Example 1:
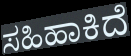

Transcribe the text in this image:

ಸಹಿಹಾಕಿದೆ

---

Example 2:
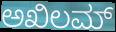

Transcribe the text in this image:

ಅಖಿಲಮ್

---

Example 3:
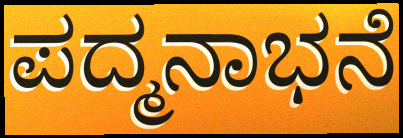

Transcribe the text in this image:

ಪದ್ಮನಾಭನೆ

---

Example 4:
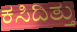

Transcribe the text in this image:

ಕಸಿದಿತ್ತು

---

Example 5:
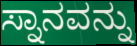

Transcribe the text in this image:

ಸ್ನಾನವನ್ನು